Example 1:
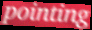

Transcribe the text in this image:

pointing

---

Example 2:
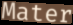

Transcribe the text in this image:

Mater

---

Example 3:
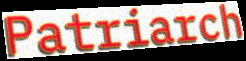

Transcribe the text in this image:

Patriarch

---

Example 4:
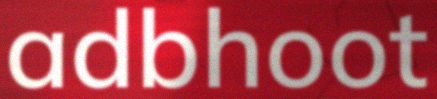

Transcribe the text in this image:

adbhoot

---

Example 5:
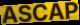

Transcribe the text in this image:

ASCAP